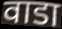
वाडा